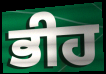
ਭੀਹ